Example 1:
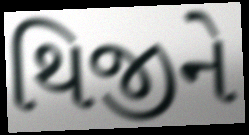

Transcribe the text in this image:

થિજીને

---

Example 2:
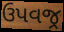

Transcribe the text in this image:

ઉપવજ્ર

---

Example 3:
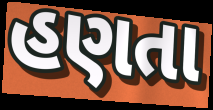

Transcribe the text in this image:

હણતા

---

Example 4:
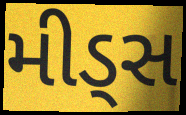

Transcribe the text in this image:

મીડ્સ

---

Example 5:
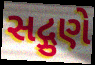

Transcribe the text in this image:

સદ્ગુણે